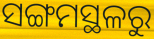
ସଙ୍ଗମସ୍ଥଳରୁ